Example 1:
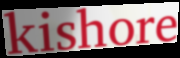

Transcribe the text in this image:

kishore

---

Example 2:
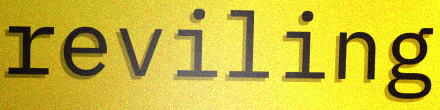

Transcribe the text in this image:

reviling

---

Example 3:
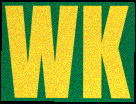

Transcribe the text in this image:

WK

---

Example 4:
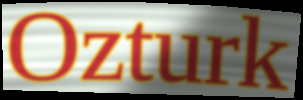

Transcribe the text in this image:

Ozturk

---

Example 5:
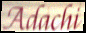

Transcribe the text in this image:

Adachi